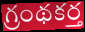
గ్రంథకర్త